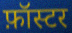
फ़ॉस्टर